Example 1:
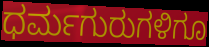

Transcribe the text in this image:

ಧರ್ಮಗುರುಗಳಿಗೂ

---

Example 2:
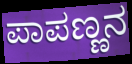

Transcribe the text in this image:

ಪಾಪಣ್ಣನ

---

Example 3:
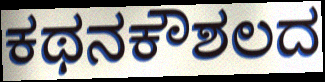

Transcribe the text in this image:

ಕಥನಕೌಶಲದ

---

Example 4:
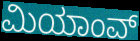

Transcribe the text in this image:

ಮಿಯಾಂವ್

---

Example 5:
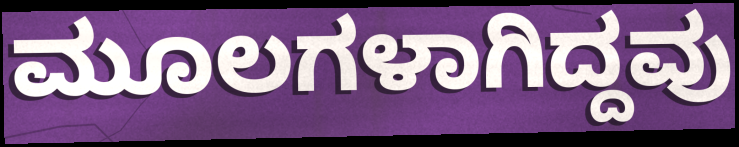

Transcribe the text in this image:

ಮೂಲಗಳಾಗಿದ್ದವು